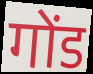
गोंड